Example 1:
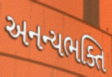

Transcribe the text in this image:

અનન્યભક્તિ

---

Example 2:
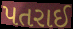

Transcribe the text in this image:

પતરાઈ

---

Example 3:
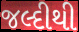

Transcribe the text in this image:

જલ્દીથી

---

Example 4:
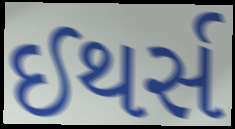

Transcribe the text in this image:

ઈથર્સ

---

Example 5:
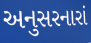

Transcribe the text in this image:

અનુસરનારાં